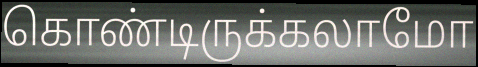
கொண்டிருக்கலாமோ